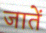
जातें